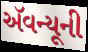
ઍવન્યૂની